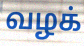
வழக்